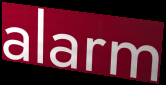
alarm